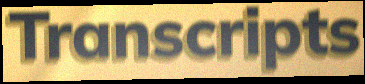
Transcripts